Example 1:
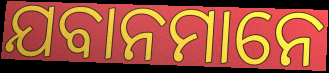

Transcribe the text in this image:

ଯବାନମାନେ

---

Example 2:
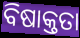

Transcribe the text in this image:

ବିଷାକ୍ତତା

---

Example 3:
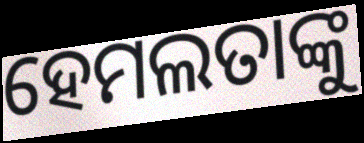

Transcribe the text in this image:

ହେମଲତାଙ୍କୁ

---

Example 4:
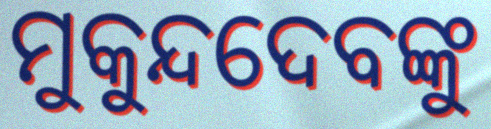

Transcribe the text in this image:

ମୁକୁନ୍ଦଦେବଙ୍କୁ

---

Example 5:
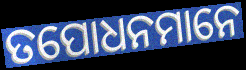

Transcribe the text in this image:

ତପୋଧନମାନେ